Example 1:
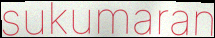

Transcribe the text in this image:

sukumaran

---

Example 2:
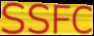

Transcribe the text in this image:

SSFC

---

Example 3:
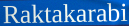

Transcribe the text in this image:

Raktakarabi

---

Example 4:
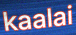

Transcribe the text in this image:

kaalai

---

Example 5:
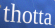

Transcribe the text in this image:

thotta